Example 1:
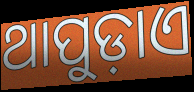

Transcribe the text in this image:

ଥାପୁଡ଼ାଏ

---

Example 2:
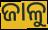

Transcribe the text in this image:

ଜାଳୁ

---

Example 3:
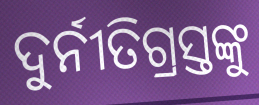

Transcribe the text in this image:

ଦୁର୍ନୀତିଗ୍ରସ୍ତଙ୍କୁ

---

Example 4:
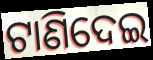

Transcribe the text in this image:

ଟାଣିଦେଇ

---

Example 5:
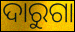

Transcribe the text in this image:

ଦାରୁଗା